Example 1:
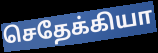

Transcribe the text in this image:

செதேக்கியா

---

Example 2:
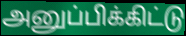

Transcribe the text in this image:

அனுப்பிக்கிட்டு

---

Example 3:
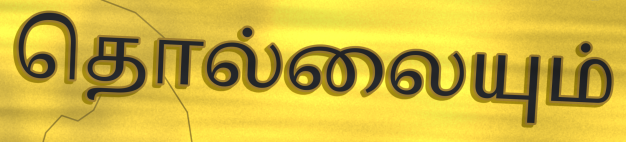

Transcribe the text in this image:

தொல்லையும்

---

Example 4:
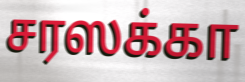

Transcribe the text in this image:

சரஸக்கா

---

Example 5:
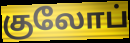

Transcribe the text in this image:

குலோப்